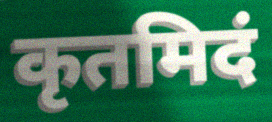
कृतमिदं